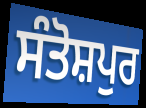
ਸੰਤੋਸ਼ਪੁਰ